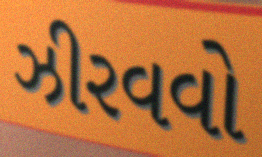
ઝીરવવો